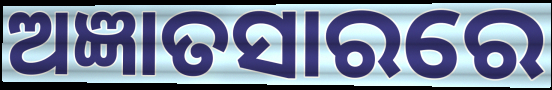
ଅଜ୍ଞାତସାରରେ